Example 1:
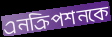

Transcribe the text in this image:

এনক্রিপশনকে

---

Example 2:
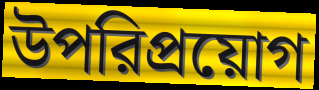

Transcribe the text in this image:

উপরিপ্রয়োগ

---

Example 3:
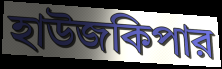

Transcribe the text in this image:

হাউজকিপার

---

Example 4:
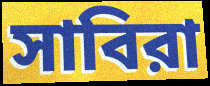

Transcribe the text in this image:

সাবিরা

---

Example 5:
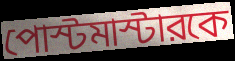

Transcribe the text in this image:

পোস্টমাস্টারকে